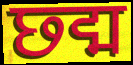
छ्द्म